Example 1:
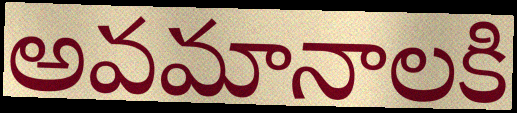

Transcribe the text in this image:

అవమానాలకి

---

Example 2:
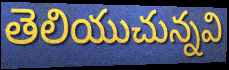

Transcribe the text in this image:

తెలియుచున్నవి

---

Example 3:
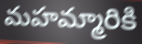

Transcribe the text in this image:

మహమ్మారికి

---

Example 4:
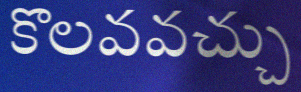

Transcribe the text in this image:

కొలవవచ్చు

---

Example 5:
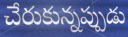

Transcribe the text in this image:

చేరుకున్నప్పుడు